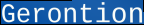
Gerontion